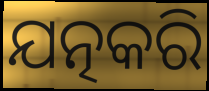
ଯତ୍ନକରି